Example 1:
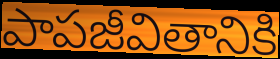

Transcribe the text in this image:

పాపజీవితానికి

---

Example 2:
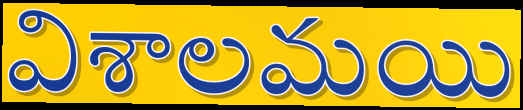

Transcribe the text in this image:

విశాలమయి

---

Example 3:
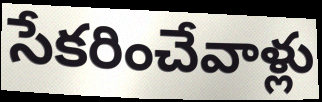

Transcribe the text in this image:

సేకరించేవాళ్లు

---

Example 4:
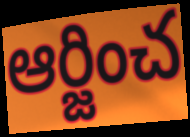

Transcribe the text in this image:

ఆర్జించ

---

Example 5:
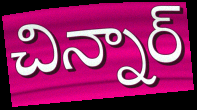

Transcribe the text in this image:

చిన్నార్